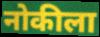
नोकीला